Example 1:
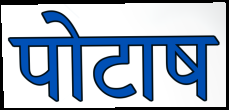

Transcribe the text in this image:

पोटाष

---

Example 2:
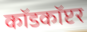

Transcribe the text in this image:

कॉडकॉप्टर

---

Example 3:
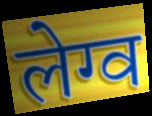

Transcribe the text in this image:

लेग्व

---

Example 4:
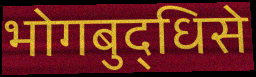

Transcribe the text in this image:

भोगबुद्धिसे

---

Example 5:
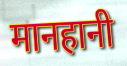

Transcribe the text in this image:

मानहानी